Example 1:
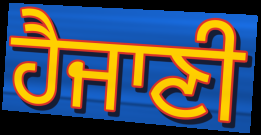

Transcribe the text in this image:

ਹੈਜਾਣੀ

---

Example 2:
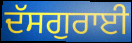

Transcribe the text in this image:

ਦੱਸਗੁਰਾਈ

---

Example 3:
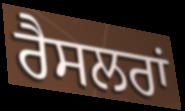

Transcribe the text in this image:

ਰੈਸਲਰਾਂ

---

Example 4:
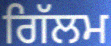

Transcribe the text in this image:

ਗਿੱਲਮ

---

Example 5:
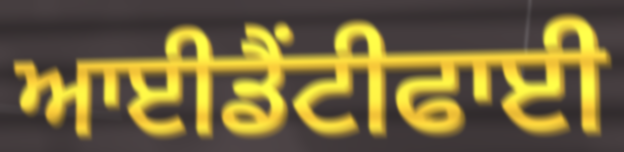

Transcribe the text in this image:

ਆਈਡੈਂਟੀਫਾਈ